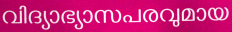
വിദ്യാഭ്യാസപരവുമായ